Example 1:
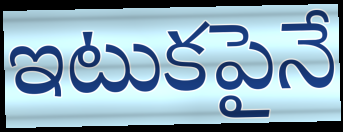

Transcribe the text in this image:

ఇటుకపైనే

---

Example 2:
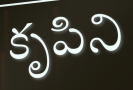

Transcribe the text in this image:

కృపిని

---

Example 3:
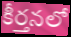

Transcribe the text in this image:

కీర్తనలో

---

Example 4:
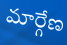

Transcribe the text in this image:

మార్గేణ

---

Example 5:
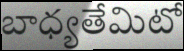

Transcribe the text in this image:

బాధ్యతేమిటో